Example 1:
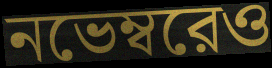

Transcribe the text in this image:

নভেম্বরেও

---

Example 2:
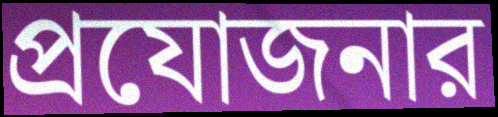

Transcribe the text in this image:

প্রযোজনার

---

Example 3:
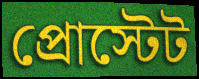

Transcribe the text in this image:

প্রোস্টেট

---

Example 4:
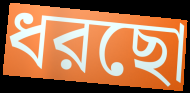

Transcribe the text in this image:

ধরছো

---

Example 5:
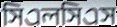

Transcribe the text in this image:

সিএলসিএস